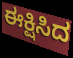
ಈಕ್ಷಿಸಿದ